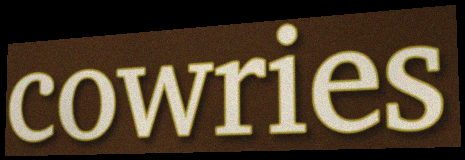
cowries